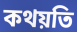
কথয়তি